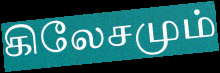
கிலேசமும்